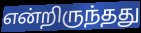
என்றிருந்தது